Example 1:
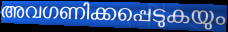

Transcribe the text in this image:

അവഗണിക്കപ്പെടുകയും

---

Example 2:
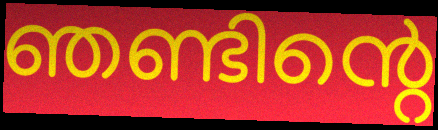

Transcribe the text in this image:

ഞണ്ടിന്റെ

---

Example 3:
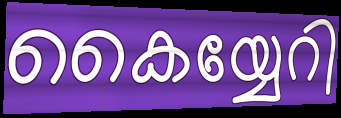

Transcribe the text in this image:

കൈയ്യേറി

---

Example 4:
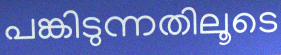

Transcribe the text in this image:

പങ്കിടുന്നതിലൂടെ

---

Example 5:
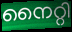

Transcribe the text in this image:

നൈറ്റി